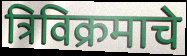
त्रिविक्रमाचे